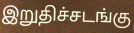
இறுதிச்சடங்கு